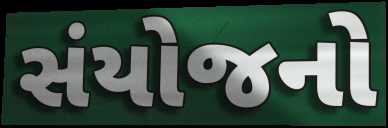
સંયોજનો